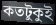
কতটুকুই